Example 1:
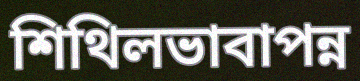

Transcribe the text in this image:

শিথিলভাবাপন্ন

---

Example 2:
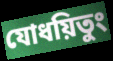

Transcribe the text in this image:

যোধয়িতুং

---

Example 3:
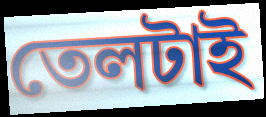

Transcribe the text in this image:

তেলটাই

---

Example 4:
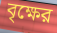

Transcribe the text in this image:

বৃক্ষের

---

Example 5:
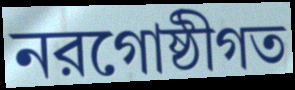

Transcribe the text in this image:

নরগোষ্ঠীগত